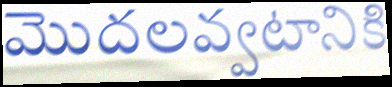
మొదలవ్వటానికి